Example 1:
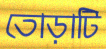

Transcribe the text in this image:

তোড়াটি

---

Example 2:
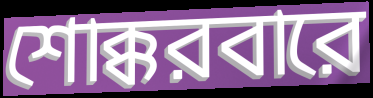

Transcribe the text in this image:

শোক্করবারে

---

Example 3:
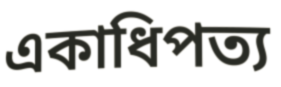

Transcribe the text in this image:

একাধিপত্য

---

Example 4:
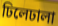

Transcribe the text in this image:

ঢিলেঢালা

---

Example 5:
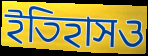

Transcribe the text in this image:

ইতিহাসও